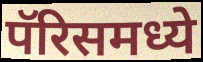
पॅरिसमध्ये